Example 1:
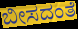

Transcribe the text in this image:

ಬೀಸದಂತೆ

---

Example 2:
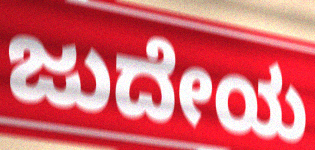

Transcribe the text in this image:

ಜುದೇಯ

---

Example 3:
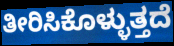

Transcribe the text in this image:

ತೀರಿಸಿಕೊಳ್ಳುತ್ತದೆ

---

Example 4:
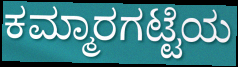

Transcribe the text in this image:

ಕಮ್ಮಾರಗಟ್ಟೆಯ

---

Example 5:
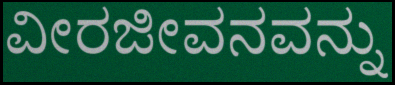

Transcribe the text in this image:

ವೀರಜೀವನವನ್ನು